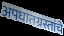
अपघातग्रस्तांचे